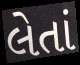
લેતાં